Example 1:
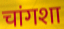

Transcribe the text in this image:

चांगशा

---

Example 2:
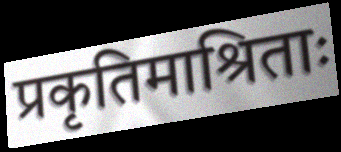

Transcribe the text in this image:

प्रकृतिमाश्रिताः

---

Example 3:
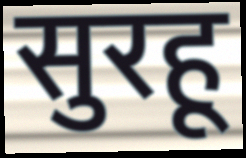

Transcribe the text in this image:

सुरहू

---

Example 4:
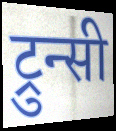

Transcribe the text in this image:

ट्रुन्सी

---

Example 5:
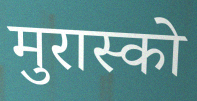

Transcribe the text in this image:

मुरास्को